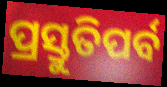
ପ୍ରସ୍ତୁତିପର୍ବ